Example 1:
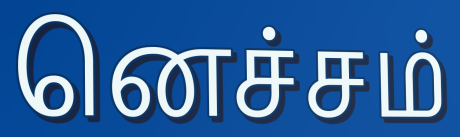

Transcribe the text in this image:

னெச்சம்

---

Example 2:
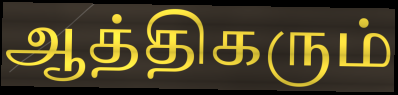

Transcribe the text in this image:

ஆத்திகரும்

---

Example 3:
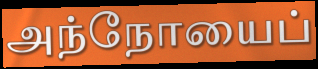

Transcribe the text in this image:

அந்நோயைப்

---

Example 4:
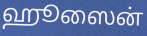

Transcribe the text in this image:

ஹூஸைன்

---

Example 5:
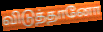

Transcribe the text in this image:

விடுத்தானோ